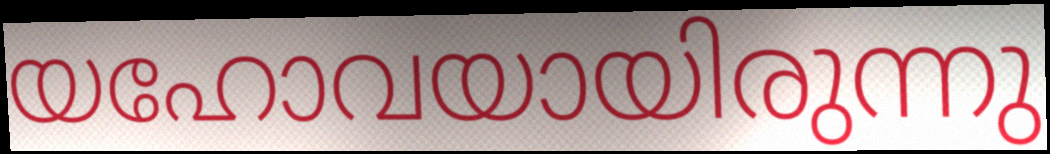
യഹോവയായിരുന്നു